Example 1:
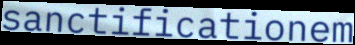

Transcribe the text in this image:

sanctificationem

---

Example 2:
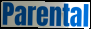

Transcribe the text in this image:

Parental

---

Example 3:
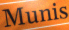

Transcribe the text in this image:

Munis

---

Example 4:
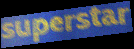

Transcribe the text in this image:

superstar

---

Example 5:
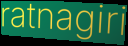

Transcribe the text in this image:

ratnagiri